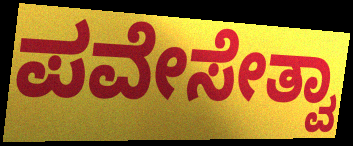
ಪವೇಸೇತ್ವಾ